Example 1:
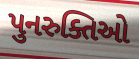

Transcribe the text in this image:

પુનરુક્તિઓ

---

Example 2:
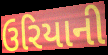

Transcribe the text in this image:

ઉરિયાની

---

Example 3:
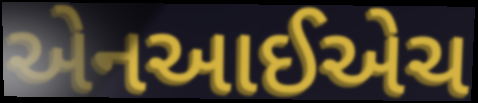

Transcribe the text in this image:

એનઆઈએચ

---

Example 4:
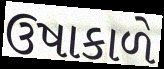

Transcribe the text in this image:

ઉષાકાળે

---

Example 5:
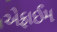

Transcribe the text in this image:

એફ્રાઈમ